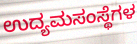
ಉದ್ಯಮಸಂಸ್ಥೆಗಳ